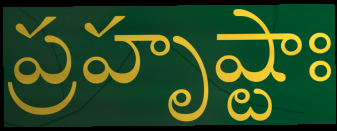
ప్రహృష్టాః